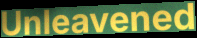
Unleavened